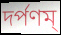
দর্পণম্